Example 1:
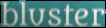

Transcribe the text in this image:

bluster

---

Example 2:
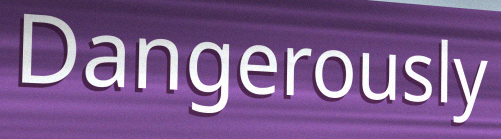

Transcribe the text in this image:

Dangerously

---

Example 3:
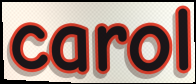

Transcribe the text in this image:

carol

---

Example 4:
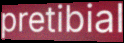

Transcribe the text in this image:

pretibial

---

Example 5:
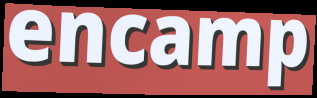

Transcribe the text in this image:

encamp